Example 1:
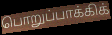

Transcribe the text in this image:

பொறுப்பாக்கிக்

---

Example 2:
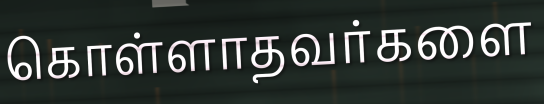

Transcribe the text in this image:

கொள்ளாதவர்களை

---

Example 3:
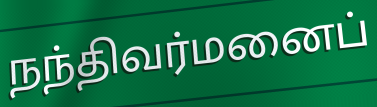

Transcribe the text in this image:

நந்திவர்மனைப்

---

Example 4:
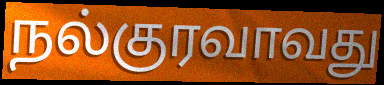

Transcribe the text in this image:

நல்குரவாவது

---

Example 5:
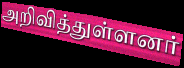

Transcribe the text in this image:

அறிவித்துள்ளனர்